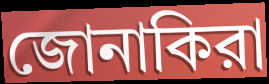
জোনাকিরা